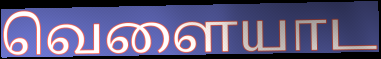
வெளையாட